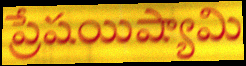
ప్రేషయిష్యామి